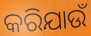
କରିଯାଉଁ